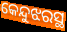
କେନ୍ଦୁଝରସ୍ଥ